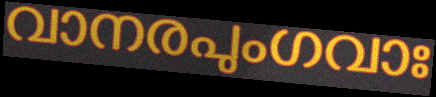
വാനരപുംഗവാഃ